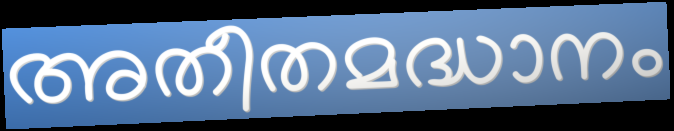
അതീതമദ്ധാനം